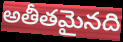
అతీతమైనది